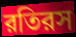
রতিরস